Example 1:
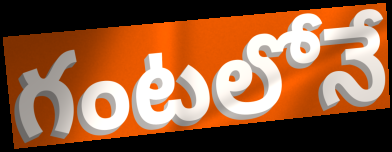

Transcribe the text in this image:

గంటలోనే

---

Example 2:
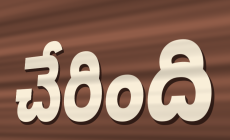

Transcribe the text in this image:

చేరింది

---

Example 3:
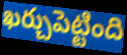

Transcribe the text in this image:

ఖర్చుపెట్టింది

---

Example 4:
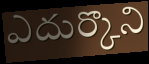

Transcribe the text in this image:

ఎదుర్కొని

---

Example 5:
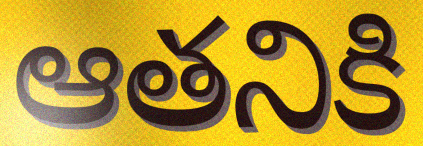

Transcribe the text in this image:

ఆతనికి